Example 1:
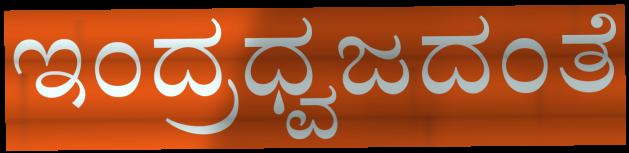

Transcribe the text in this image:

ಇಂದ್ರಧ್ವಜದಂತೆ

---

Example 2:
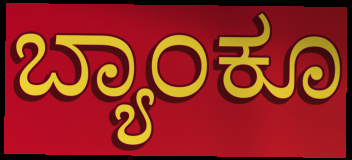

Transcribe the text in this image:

ಬ್ಯಾಂಕೂ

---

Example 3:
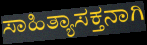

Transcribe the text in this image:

ಸಾಹಿತ್ಯಾಸಕ್ತನಾಗಿ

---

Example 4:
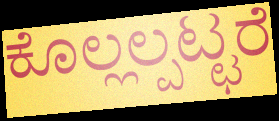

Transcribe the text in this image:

ಕೊಲ್ಲಲ್ಪಟ್ಟರೆ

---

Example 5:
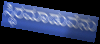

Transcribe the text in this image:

ಸ್ಥಿರಮಾಡುವೆನು